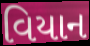
વિયાન